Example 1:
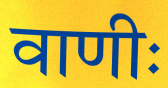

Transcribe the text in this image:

वाणीः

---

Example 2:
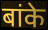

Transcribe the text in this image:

बांके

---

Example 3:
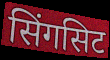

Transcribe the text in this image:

सिंगसिट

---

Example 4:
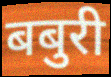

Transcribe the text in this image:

बबुरी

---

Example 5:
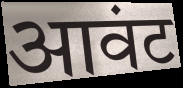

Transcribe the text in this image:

आवंट